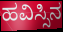
ಹವಿಸ್ಸಿನ